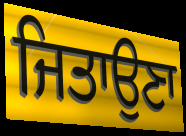
ਜਿਤਾਉਣਾ